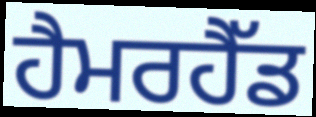
ਹੈਮਰਹੈੱਡ